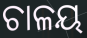
ଚାଳୟ